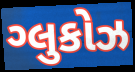
ગ્લુકોઝ